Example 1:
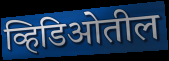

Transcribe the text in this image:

व्हिडिओतील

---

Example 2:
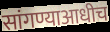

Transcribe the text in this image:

सांगण्याआधीच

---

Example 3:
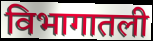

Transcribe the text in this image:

विभागातली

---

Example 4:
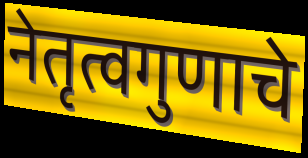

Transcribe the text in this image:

नेतृत्वगुणाचे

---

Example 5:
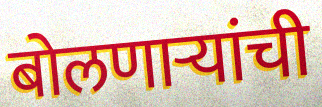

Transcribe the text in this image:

बोलणाऱ्यांची